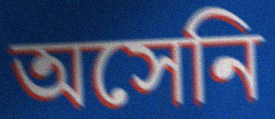
অসেনি